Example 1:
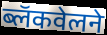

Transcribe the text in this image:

ब्लॅकवेलने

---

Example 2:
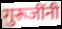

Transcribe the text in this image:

गुरूजींनी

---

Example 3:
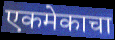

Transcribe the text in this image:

एकमेकाचा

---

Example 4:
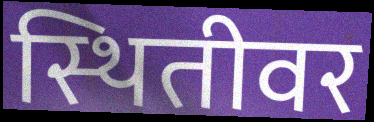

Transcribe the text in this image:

स्थितीवर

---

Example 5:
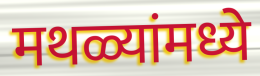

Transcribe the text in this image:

मथळ्यांमध्ये